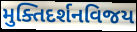
મુક્તિદર્શનવિજય